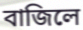
বাজিলে